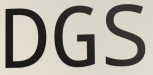
DGS